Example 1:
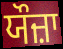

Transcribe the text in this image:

ਯੌਜ਼ਾ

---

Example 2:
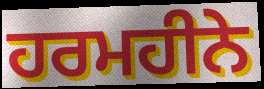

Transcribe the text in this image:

ਹਰਮਹੀਨੇ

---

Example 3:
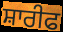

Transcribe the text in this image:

ਸ਼ਾਰੀਫ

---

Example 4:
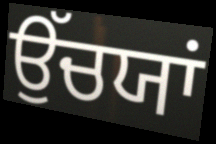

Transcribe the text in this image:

ਉੱਚਯਾਂ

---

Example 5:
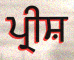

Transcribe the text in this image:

ਪ੍ਰੀਸ਼